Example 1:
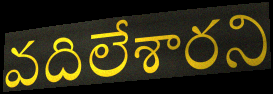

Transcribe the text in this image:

వదిలేశారని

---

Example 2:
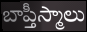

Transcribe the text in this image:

బాప్తీస్మాలు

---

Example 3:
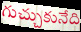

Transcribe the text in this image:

గుచ్చుకునేది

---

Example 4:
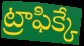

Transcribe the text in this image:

ట్రాఫిక్కే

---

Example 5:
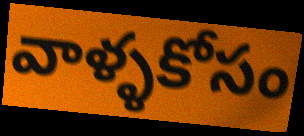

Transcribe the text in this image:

వాళ్ళకోసం